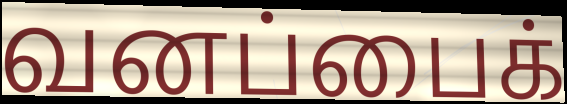
வனப்பைக்